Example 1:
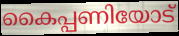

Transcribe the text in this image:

കൈപ്പണിയോട്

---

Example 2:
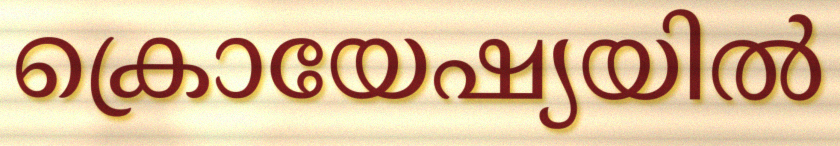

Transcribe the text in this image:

ക്രൊയേഷ്യയിൽ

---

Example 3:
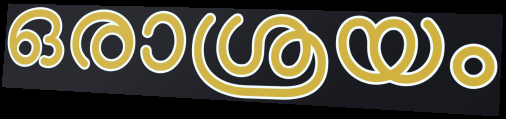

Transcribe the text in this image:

ഒരാശ്രയം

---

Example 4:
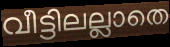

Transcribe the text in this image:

വീട്ടിലല്ലാതെ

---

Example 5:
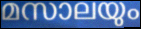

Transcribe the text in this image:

മസാലയും